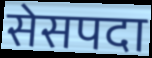
सेसपदा